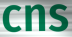
cns